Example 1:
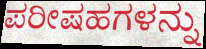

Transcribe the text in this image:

ಪರೀಷಹಗಳನ್ನು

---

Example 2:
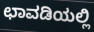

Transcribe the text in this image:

ಛಾವಡಿಯಲ್ಲಿ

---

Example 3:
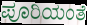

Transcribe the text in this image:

ಪೂರಿಯಂತೆ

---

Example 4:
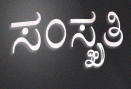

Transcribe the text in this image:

ಸಂಸ್ಖೃತಿ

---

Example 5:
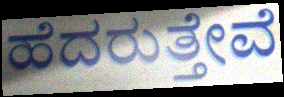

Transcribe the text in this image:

ಹೆದರುತ್ತೇವೆ